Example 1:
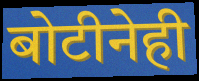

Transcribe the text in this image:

बोटीनेही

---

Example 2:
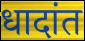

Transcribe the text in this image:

धादांत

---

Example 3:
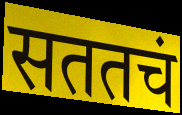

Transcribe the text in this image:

सततचं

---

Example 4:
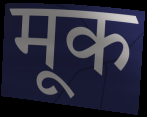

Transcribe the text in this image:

मूक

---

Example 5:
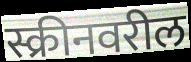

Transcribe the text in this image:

स्क्रीनवरील